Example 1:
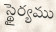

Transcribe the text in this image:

స్థైర్యము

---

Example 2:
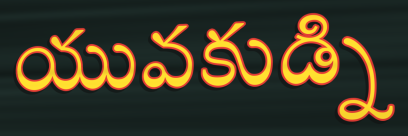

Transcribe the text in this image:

యువకుడ్ని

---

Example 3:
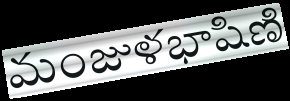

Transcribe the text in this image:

మంజుళభాషిణి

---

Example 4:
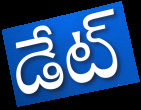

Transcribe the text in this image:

డేట్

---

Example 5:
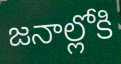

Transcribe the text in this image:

జనాల్లోకి